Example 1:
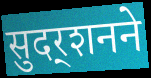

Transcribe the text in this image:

सुदर्शनने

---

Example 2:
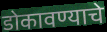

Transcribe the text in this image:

डोकावण्याचे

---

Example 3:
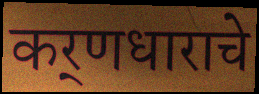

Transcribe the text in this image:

कर्णधाराचे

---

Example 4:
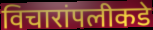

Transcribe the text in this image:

विचारांपलीकडे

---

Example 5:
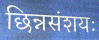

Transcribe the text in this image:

छिन्नसंशयः